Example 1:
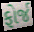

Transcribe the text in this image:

ફોર્જ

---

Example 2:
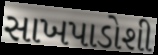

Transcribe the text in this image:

સાખપાડોશી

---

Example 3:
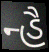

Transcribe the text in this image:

ન્હૈ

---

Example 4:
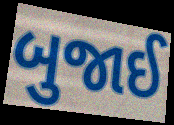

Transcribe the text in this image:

બુજાઈ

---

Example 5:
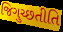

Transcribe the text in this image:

જિગુચ્છતીતિ